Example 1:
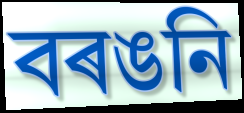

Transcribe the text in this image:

বৰঙনি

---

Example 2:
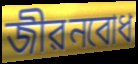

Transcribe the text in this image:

জীৱনবোধ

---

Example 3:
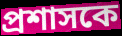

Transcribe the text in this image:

প্ৰশাসকে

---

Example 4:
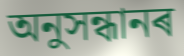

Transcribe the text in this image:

অনুসন্ধানৰ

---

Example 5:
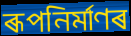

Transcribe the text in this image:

ৰূপনিৰ্মাণৰ